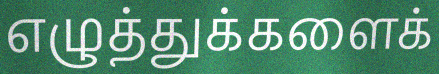
எழுத்துக்களைக்